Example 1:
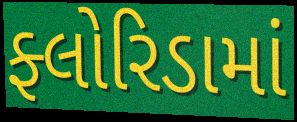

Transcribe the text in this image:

ફ્લોરિડામાં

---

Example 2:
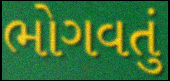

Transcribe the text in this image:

ભોગવતું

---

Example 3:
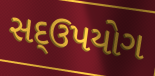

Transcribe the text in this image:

સદ્ઉપયોગ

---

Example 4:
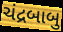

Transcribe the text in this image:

ચંદ્રબાબુ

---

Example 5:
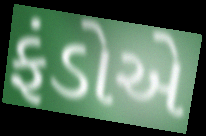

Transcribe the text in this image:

ફંડોએ